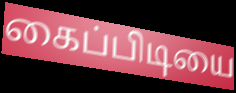
கைப்பிடியை